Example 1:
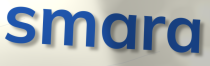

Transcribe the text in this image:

smara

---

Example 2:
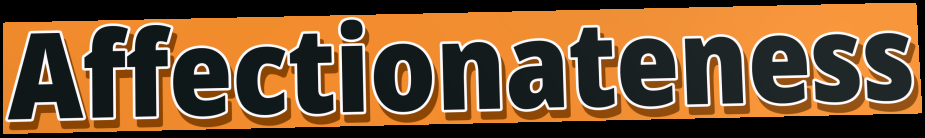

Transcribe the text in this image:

Affectionateness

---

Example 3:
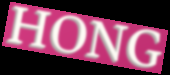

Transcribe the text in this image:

HONG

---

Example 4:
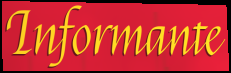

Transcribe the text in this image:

Informante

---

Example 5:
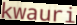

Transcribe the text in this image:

kwauri